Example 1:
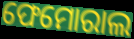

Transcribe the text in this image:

ଫେମୋରାଲ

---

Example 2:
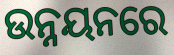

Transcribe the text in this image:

ଉନ୍ନୟନରେ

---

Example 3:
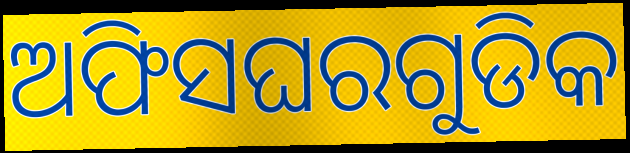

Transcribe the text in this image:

ଅଫିସଘରଗୁଡିକ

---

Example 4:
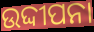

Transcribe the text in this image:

ଉଦ୍ଦୀପନା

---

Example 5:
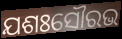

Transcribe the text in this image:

ଯଶଃସୌରଭ